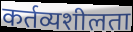
कर्तव्यशीलता